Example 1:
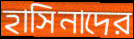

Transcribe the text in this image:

হাসিনাদের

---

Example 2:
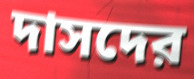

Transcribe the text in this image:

দাসদের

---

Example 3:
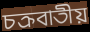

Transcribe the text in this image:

চক্রবাতীয়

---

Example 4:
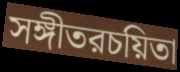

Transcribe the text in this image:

সঙ্গীতরচয়িতা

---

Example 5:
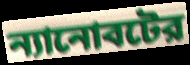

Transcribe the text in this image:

ন্যানোবটের